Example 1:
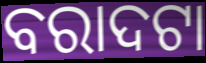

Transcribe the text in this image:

ବରାଦଟା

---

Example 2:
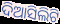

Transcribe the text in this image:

ଦିଆସିଲିଟି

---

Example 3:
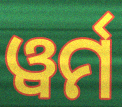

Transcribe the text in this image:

ୱର୍ମ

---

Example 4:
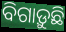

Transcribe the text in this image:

ବିଗାଡ଼ୁଛି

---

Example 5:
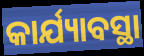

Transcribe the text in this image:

କାର୍ଯ୍ୟାବସ୍ଥା